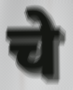
चे